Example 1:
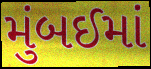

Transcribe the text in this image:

મુંબઈમાં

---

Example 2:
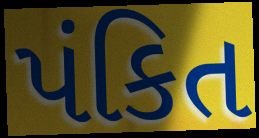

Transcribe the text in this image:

પંકિત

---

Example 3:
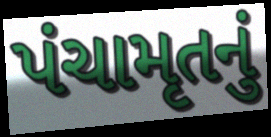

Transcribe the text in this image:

પંચામૃતનું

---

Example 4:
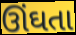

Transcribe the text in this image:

ઊંઘતા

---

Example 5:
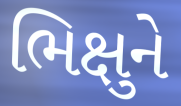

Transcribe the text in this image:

ભિક્ષુને